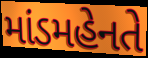
માંડમહેનતે